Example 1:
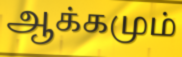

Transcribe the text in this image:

ஆக்கமும்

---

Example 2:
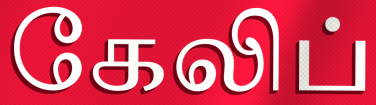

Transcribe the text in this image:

கேலிப்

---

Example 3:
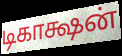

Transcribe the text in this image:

டிகாக்ஷன்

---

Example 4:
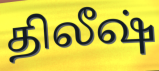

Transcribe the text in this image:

திலீஷ்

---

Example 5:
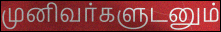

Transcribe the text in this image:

முனிவர்களுடனும்